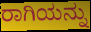
ರಾಗಿಯನ್ನು